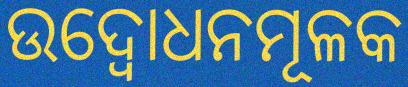
ଉଦ୍ବୋଧନମୂଳକ